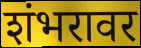
शंभरावर